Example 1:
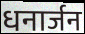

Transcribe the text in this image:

धनार्जन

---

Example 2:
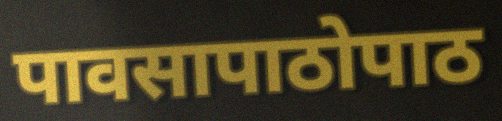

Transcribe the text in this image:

पावसापाठोपाठ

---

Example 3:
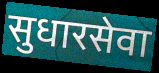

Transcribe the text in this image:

सुधारसेवा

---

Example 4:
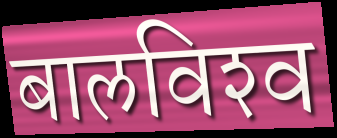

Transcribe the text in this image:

बालविश्व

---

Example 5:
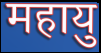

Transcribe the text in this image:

महायु